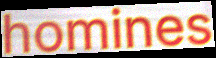
homines